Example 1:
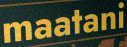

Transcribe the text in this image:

maatani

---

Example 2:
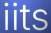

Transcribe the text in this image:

iits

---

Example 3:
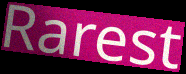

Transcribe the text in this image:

Rarest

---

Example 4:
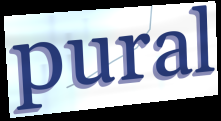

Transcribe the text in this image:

pural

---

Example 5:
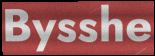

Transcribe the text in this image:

Bysshe